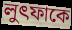
লুৎফাকে